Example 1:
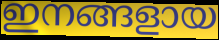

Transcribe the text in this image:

ഇനങ്ങളായ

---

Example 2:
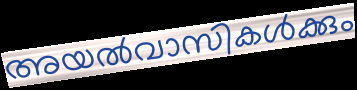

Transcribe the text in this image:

അയൽവാസികൾക്കും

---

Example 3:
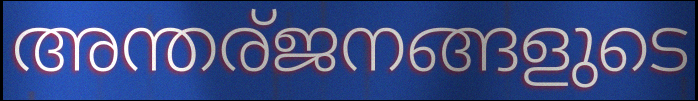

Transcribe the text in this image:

അന്തര്ജനങ്ങളുടെ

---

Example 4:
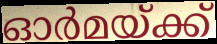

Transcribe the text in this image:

ഓർമയ്ക്ക്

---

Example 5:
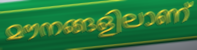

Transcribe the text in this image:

മൗനങ്ങളിലാണ്